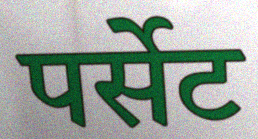
पर्सेट